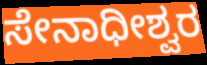
ಸೇನಾಧೀಶ್ವರ